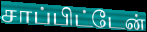
சாப்பிட்டேன்